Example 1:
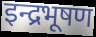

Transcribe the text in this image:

इन्द्रभूषण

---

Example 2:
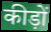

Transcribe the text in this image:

कीड़ों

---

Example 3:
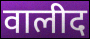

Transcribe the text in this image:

वालीद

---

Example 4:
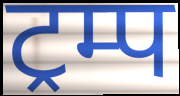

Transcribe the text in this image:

ट्रम्‍प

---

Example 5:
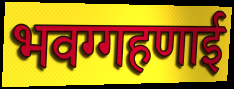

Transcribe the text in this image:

भवग्गहणाई